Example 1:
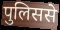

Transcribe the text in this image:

पुलिससे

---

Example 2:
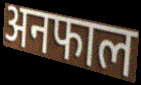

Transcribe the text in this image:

अनफाल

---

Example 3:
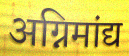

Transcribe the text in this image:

अग्निमांद्य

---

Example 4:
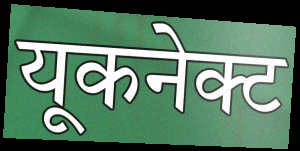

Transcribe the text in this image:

यूकनेक्ट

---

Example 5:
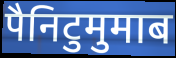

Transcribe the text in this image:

पैनिटुमुमाब